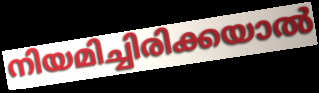
നിയമിച്ചിരിക്കയാൽ